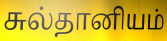
சுல்தானியம்